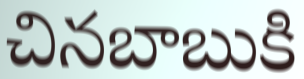
చినబాబుకి